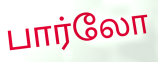
பார்லோ